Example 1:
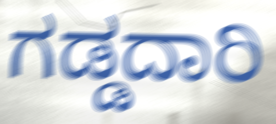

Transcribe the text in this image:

ಗಡ್ಡದಾರಿ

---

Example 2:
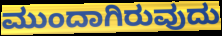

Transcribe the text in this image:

ಮುಂದಾಗಿರುವುದು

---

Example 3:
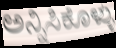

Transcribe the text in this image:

ಅನ್ನಿಸಿಕೊಳ್ಳು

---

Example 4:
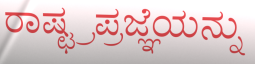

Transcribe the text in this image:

ರಾಷ್ಟ್ರಪ್ರಜ್ಞೆಯನ್ನು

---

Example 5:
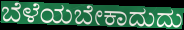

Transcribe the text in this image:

ಬೆಳೆಯಬೇಕಾದುದು